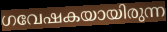
ഗവേഷകയായിരുന്ന